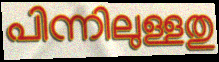
പിന്നിലുള്ളതു